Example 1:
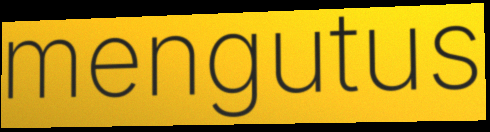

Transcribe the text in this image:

mengutus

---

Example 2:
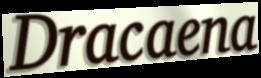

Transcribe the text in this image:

Dracaena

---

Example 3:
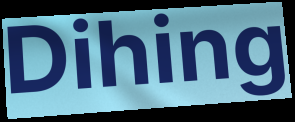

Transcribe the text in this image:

Dihing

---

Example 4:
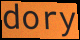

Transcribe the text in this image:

dory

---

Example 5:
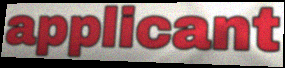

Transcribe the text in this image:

applicant